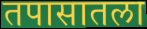
तपासातला